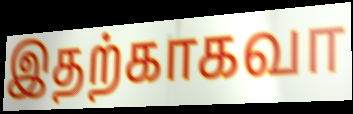
இதற்காகவா